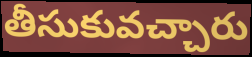
తీసుకువచ్చారు